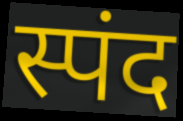
स्पंद